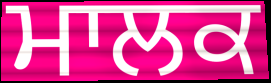
ਮਾਲਕ